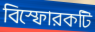
বিস্ফোরকটি